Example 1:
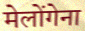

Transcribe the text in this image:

मेलोंगेना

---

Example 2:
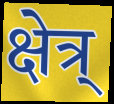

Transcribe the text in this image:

क्षेत्र्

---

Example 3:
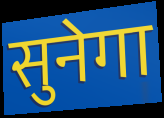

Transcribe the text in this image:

सुनेगा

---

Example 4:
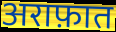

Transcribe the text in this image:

अराफ़ात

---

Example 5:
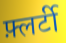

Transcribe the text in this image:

फ़्लर्टी